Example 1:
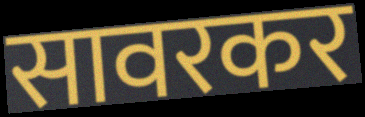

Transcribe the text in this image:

सावरकर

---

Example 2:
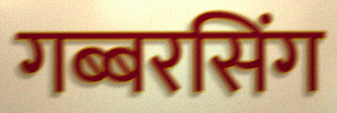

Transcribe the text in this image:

गब्बरसिंग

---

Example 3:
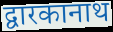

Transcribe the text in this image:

द्वारकानाथ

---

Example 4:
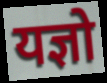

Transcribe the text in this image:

यज्ञो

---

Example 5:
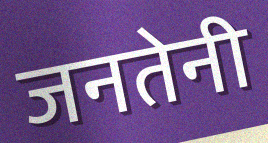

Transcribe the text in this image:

जनतेनी